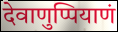
देवाणुप्पियाणं